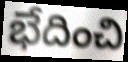
భేదించి